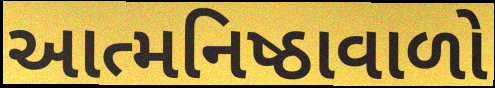
આત્મનિષ્ઠાવાળો